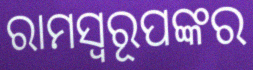
ରାମସ୍ୱରୂପଙ୍କର